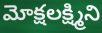
మోక్షలక్ష్మిని